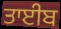
ਤਾਈਬ